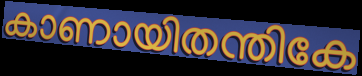
കാണായിതന്തികേ